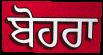
ਬੋਹਰਾ